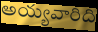
అయ్యవారిది